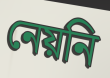
নেয়নি